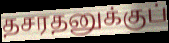
தசரதனுக்குப்